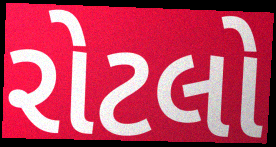
રોટલો